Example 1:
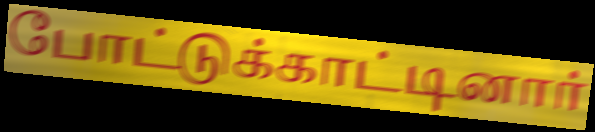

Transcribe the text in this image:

போட்டுக்காட்டினார்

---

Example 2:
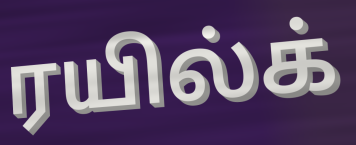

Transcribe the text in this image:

ரயில்க்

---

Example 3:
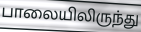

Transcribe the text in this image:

பாலையிலிருந்து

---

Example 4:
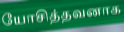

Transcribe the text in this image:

யோசித்தவனாக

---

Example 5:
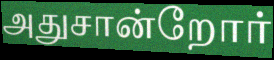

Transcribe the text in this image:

அதுசான்றோர்